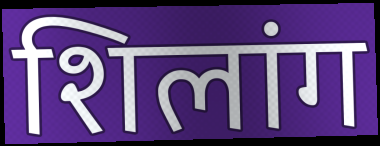
शिलांग